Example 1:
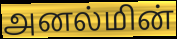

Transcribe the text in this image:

அனல்மின்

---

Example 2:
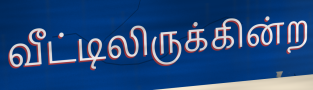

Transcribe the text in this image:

வீட்டிலிருக்கின்ற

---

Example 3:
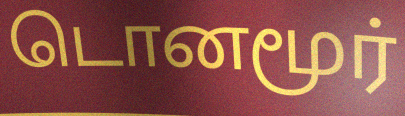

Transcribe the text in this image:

டொனமூர்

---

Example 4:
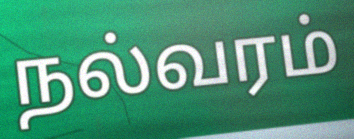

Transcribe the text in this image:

நல்வரம்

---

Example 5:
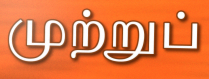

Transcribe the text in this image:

முற்றுப்